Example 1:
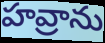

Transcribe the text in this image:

హవ్రాను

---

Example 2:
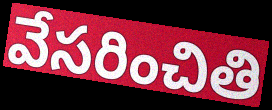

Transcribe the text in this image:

వేసరించితి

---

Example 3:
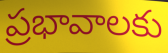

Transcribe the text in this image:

ప్రభావాలకు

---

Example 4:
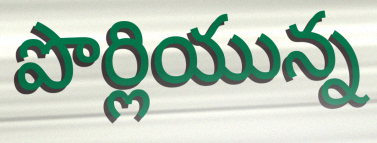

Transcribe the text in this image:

పొర్లియున్న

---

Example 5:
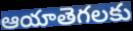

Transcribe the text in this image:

ఆయాతెగలకు